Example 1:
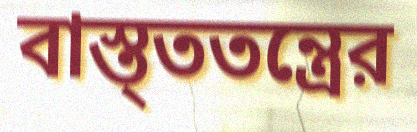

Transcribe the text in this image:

বাস্ত্ততন্ত্রের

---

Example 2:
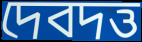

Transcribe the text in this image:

দেবদত্ত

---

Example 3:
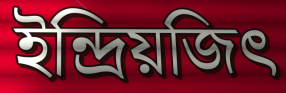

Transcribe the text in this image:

ইন্দ্রিয়জিৎ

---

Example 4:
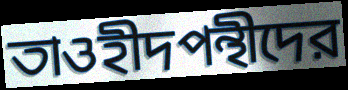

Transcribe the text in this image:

তাওহীদপন্থীদের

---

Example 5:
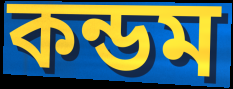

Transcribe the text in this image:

কন্ডম